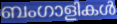
ബംഗാളികൾ